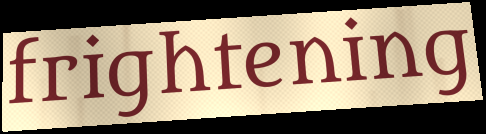
frightening